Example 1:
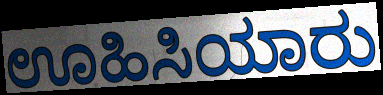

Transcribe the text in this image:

ಊಹಿಸಿಯಾರು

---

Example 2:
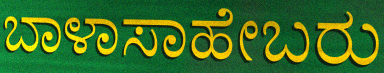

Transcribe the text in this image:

ಬಾಳಾಸಾಹೇಬರು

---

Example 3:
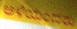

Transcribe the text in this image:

ಅಳಿಯಂದರು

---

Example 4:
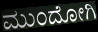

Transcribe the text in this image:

ಮುಂದೋಗಿ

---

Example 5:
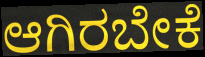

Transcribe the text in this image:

ಆಗಿರಬೇಕೆ